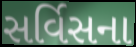
સર્વિસના